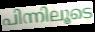
പിന്നിലൂടെ